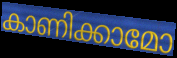
കാണിക്കാമോ